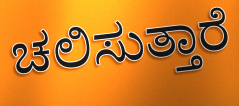
ಚಲಿಸುತ್ತಾರೆ